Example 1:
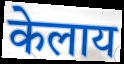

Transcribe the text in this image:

केलाय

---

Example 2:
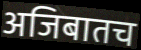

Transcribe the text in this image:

अजिबातच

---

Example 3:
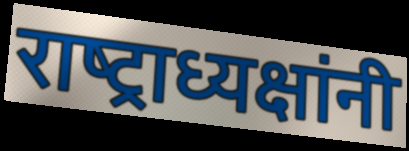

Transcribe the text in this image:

राष्ट्राध्यक्षांनी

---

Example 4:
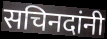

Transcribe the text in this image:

सचिनदांनी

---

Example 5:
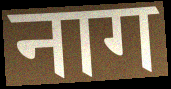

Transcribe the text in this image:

नाग